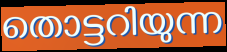
തൊട്ടറിയുന്ന